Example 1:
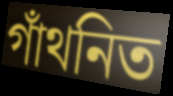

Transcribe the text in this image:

গাঁথনিত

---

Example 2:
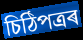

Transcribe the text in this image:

চিঠিপত্ৰৰ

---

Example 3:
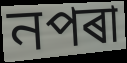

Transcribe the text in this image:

নপৰা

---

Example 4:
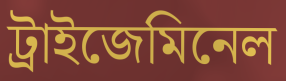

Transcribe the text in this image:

ট্ৰাইজেমিনেল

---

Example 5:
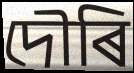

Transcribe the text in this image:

দৌৰি